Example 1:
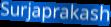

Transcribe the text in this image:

Surjaprakash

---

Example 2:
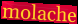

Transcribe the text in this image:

molache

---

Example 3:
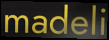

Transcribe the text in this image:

madeli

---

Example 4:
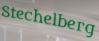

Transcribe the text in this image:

Stechelberg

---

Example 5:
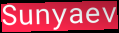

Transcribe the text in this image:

Sunyaev